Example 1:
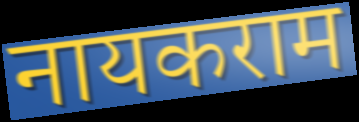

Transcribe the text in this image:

नायकराम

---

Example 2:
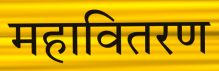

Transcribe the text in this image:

महावितरण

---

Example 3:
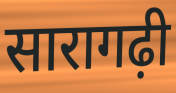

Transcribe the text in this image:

सारागढ़ी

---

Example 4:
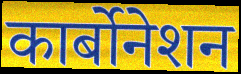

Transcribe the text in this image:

कार्बोनेशन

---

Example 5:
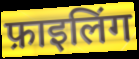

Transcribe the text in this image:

फ़ाइलिंग